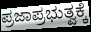
ಪ್ರಜಾಪ್ರಭುತ್ವಕ್ಕೆ